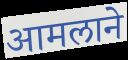
आमलाने